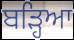
ਬੜ੍ਹਿਆ